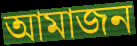
আমাজন